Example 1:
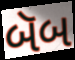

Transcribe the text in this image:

બૅબ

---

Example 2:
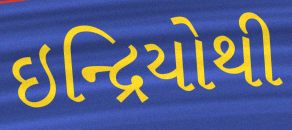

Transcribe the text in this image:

ઇન્દ્રિયોથી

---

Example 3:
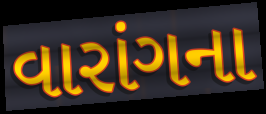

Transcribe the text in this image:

વારાંગના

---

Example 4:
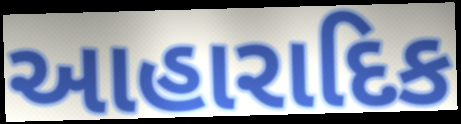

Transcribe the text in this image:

આહારાદિક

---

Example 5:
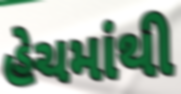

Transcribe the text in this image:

હેચમાંથી